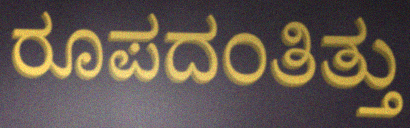
ರೂಪದಂತಿತ್ತು